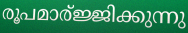
രൂപമാര്ജ്ജിക്കുന്നു